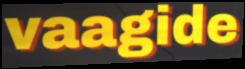
vaagide